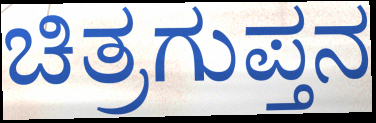
ಚಿತ್ರಗುಪ್ತನ